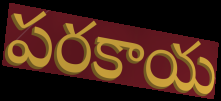
పరకాయ